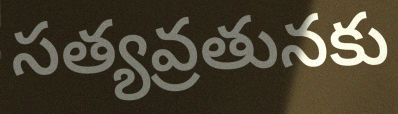
సత్యవ్రతునకు